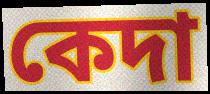
কেদা